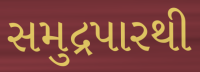
સમુદ્રપારથી